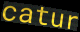
catur